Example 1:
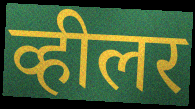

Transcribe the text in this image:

व्हीलर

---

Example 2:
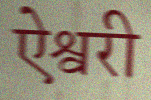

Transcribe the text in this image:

ऐश्वरी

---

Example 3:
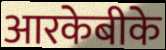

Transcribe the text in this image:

आरकेबीके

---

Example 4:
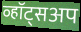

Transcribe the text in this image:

व्हॉट्सअप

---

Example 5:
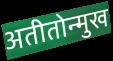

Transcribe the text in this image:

अतीतोन्मुख